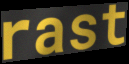
rast